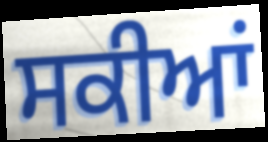
ਸਕੀਆਂ